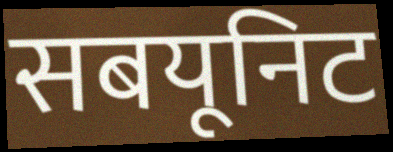
सबयूनिट